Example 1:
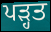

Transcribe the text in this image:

ਪਡ਼੍ਹਤ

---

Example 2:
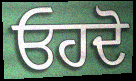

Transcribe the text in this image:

ਓਹਦੋ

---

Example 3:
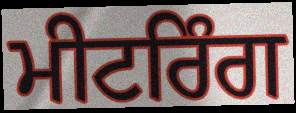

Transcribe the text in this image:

ਮੀਟਰਿੰਗ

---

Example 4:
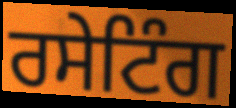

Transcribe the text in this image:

ਰਸੇਟਿੰਗ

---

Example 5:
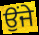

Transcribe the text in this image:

ਉਂਜੇ